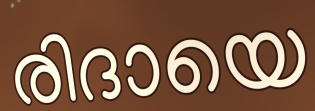
രിദായെ